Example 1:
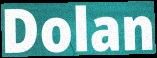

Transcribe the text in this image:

Dolan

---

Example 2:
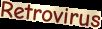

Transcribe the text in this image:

Retrovirus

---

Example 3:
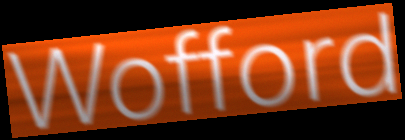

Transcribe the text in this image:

Wofford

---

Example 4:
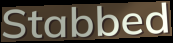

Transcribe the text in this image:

Stabbed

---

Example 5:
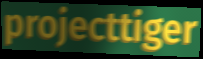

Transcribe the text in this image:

projecttiger